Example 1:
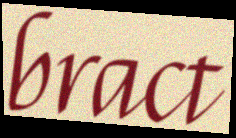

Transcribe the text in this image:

bract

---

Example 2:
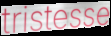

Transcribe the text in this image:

tristesse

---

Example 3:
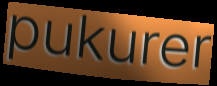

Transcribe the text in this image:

pukurer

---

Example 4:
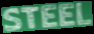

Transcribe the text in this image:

STEEL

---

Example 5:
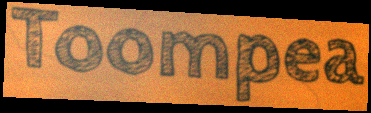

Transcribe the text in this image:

Toompea